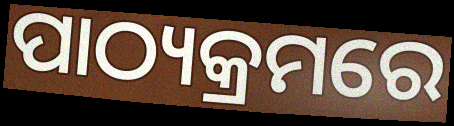
ପାଠ୍ୟକ୍ରମରେ